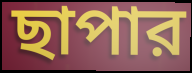
ছাপার